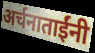
अर्चनाताईंनी